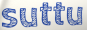
suttu